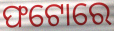
ଫଟୋରେ